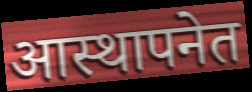
आस्थापनेत